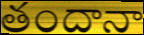
తందానా